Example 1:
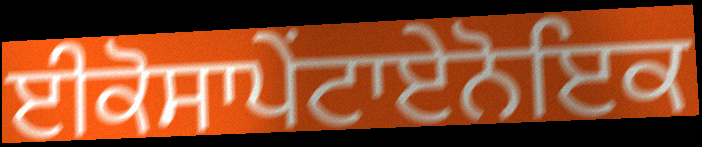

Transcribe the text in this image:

ਈਕੋਸਾਪੇਂਟਾਏਨੋਇਕ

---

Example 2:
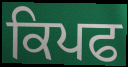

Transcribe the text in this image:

ਕਿਪਫ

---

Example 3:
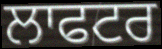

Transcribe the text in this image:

ਲਾਫਟਰ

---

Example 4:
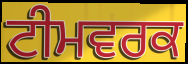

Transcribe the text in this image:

ਟੀਮਵਰਕ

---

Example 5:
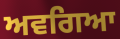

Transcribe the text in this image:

ਅਵਗਿਆ